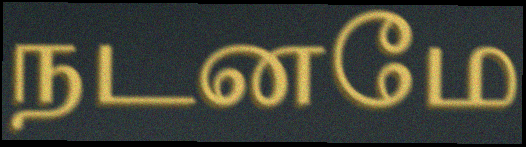
நடனமே